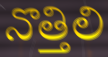
నొత్తిలి